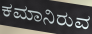
ಕಮಾನಿರುವ